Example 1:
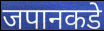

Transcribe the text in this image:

जपानकडे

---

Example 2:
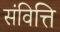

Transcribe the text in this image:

संवित्ति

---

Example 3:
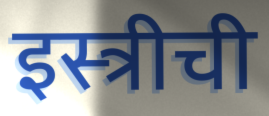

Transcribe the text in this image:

इस्त्रीची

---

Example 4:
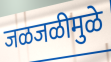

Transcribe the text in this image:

जळजळीमुळे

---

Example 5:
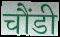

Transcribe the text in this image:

चौंडी